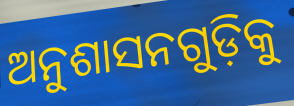
ଅନୁଶାସନଗୁଡ଼ିକୁ